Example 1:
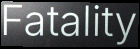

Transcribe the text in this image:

Fatality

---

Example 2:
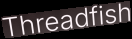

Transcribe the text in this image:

Threadfish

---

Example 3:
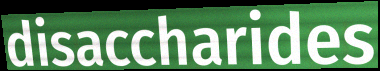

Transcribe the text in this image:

disaccharides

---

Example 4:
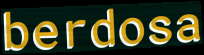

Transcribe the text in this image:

berdosa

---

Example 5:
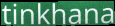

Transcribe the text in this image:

tinkhana